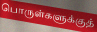
பொருள்களுக்குத்